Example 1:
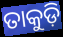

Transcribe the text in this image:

ତାକୁଡ଼ି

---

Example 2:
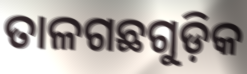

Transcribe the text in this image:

ତାଳଗଛଗୁଡ଼ିକ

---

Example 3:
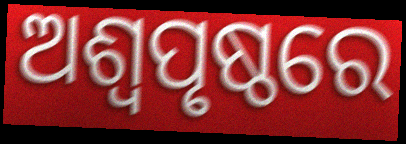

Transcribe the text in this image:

ଅଶ୍ୱପୃଷ୍ଠରେ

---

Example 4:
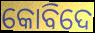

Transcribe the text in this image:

କୋବିଦେ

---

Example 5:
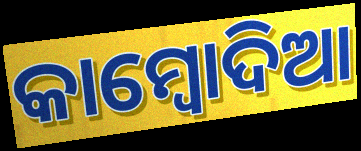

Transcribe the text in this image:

କାମ୍ବୋଦିଆ